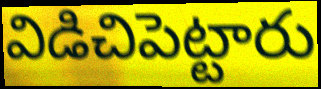
విడిచిపెట్టారు